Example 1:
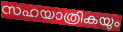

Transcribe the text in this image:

സഹയാത്രികയും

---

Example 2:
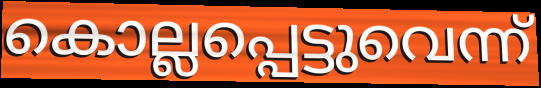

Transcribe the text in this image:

കൊല്ലപ്പെട്ടുവെന്ന്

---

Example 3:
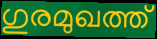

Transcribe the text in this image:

ഗുരമുഖത്ത്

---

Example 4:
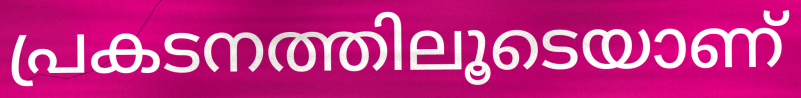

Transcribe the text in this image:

പ്രകടനത്തിലൂടെയാണ്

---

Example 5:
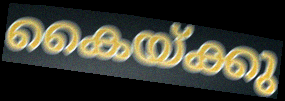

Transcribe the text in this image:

കൈയ്ക്കു